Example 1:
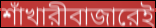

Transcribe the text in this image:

শাঁখারীবাজারেই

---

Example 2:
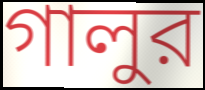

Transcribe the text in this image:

গালুর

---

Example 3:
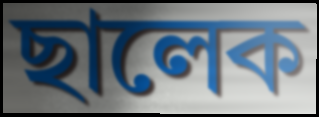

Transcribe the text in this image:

ছালেক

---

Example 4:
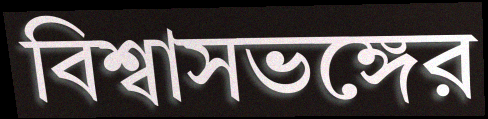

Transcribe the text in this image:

বিশ্বাসভঙ্গের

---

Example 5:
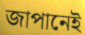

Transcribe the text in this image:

জাপানেই